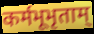
कर्मभूभृताम्